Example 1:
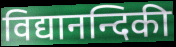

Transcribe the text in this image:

विद्यानन्दिकी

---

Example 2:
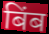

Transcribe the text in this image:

बिंब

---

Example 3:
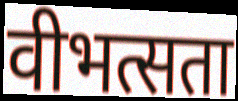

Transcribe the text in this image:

वीभत्सता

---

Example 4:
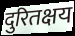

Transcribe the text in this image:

दुरितक्षय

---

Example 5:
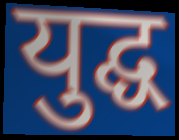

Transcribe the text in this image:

युद्घ